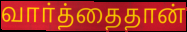
வார்த்தைதான்